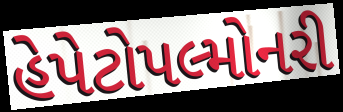
હેપેટોપલ્મોનરી